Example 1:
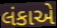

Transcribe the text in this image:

લંકાએ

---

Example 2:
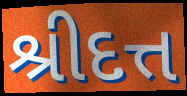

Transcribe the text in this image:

શ્રીદત્ત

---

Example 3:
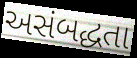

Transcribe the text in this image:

અસંબદ્ધતા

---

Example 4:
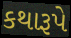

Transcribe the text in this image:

કથારૂપે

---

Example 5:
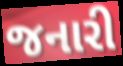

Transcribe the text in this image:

જનારી